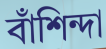
বাঁশিন্দা